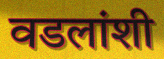
वडलांशी